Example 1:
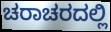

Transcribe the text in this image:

ಚರಾಚರದಲ್ಲಿ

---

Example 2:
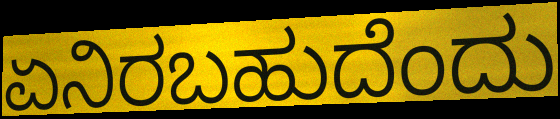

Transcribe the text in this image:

ಏನಿರಬಹುದೆಂದು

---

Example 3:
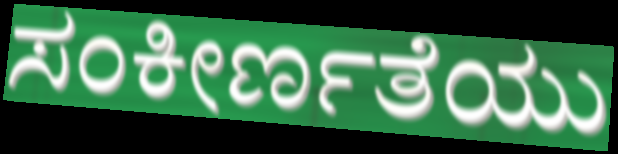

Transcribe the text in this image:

ಸಂಕೀರ್ಣತೆಯು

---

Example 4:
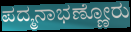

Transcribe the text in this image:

ಪದ್ಮನಾಭಣ್ಣೋರು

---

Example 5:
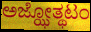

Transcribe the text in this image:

ಅಜ್ಝೋತ್ಥಟಂ